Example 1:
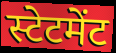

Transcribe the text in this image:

स्टेटमेंट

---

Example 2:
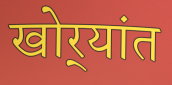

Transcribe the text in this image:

खोर्यांत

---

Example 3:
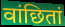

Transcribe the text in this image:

वांछितां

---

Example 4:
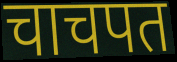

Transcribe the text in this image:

चाचपत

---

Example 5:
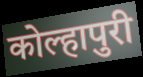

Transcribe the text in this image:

कोल्हापुरी